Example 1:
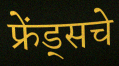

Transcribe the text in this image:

फ्रेंड्सचे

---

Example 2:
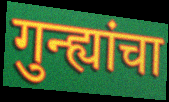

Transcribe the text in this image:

गुन्ह्यांचा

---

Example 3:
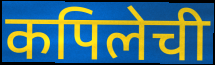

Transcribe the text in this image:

कपिलेची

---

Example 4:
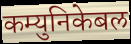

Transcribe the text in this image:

कम्युनिकेबल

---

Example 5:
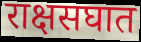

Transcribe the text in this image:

राक्षसघात